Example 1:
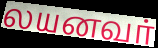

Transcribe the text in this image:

லயனவர்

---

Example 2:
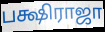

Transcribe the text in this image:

பக்ஷிராஜா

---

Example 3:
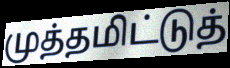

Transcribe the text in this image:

முத்தமிட்டுத்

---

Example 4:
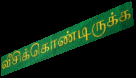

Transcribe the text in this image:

வீசிக்கொண்டிருக்க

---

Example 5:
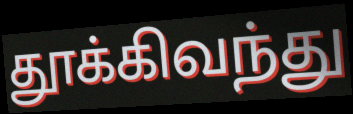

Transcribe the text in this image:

தூக்கிவந்து